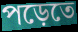
পড়েতে